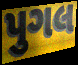
પુગલ